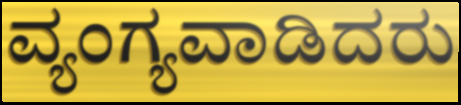
ವ್ಯಂಗ್ಯವಾಡಿದರು